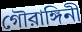
গৌরাঙ্গিনী